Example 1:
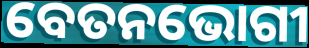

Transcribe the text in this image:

ବେତନଭୋଗୀ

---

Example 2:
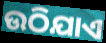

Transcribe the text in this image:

ଉଠିଯାଏ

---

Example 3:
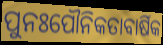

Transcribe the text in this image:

ପୁନଃପୌନିକତାବାର୍ଷିକ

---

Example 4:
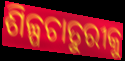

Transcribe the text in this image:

ଶିଳ୍ପଚାତୁରୀକୁ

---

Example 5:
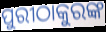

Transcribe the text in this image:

ପୁରୀଠାକୁରଙ୍କ